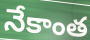
నేకాంత